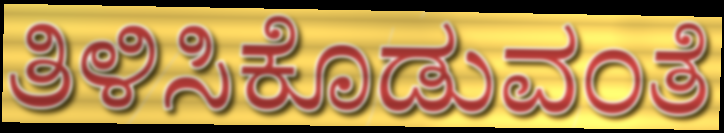
ತಿಳಿಸಿಕೊಡುವಂತೆ